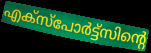
എക്സ്പോർട്ട്സിന്റെ